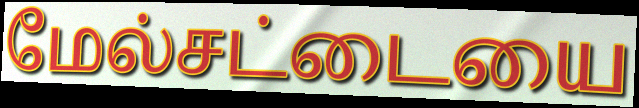
மேல்சட்டையை